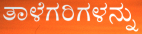
ತಾಳೆಗರಿಗಳನ್ನು